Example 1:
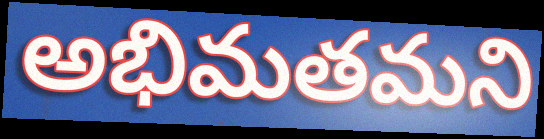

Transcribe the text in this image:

అభిమతమని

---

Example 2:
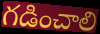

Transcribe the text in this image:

గడించాలి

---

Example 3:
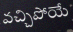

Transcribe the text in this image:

వచ్చిపోయే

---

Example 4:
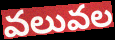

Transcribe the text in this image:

వలువల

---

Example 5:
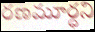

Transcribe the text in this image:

రణమూర్ధని